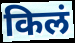
किलं